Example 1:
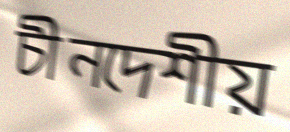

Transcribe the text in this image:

চীনদেশীয়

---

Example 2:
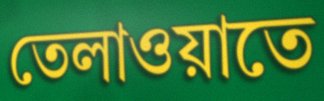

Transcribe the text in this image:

তেলাওয়াতে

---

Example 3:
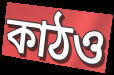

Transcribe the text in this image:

কাঠও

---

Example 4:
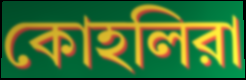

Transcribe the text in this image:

কোহলিরা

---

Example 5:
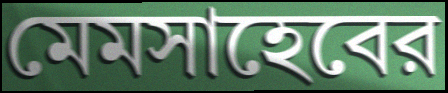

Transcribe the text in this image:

মেমসাহেবের